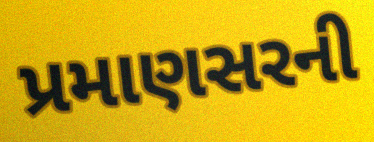
પ્રમાણસરની